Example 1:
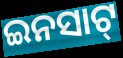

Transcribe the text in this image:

ଇନସାଟ୍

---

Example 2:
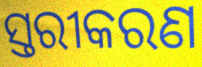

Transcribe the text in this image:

ସ୍ତରୀକରଣ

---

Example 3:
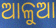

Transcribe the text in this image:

ଆଳୁଆ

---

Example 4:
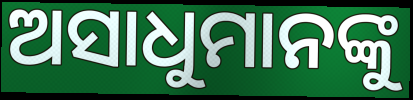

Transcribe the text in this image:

ଅସାଧୁମାନଙ୍କୁ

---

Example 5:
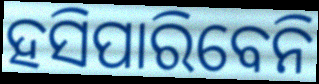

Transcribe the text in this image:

ହସିପାରିବେନି